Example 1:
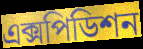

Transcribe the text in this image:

এক্সপিডিশন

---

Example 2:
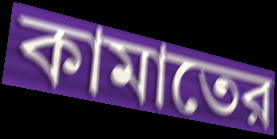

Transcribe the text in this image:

কামাতের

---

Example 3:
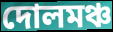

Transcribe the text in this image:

দোলমঞ্চ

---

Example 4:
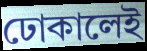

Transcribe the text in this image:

ঢোকালেই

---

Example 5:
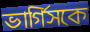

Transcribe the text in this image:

ভার্গিসকে